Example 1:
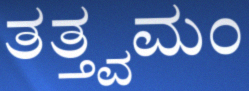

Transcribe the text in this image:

ತತ್ತ್ವಮಂ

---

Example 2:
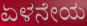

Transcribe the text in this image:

ಏಳನೇಯ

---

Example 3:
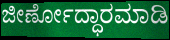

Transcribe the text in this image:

ಜೀರ್ಣೋದ್ಧಾರಮಾಡಿ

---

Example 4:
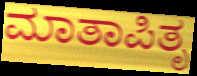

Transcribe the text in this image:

ಮಾತಾಪಿತೃ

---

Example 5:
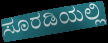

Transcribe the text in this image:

ಸೂರಡಿಯಲ್ಲಿ